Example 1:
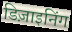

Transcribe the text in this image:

डिज़ाइनिंग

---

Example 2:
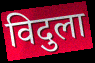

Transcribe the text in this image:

विदुला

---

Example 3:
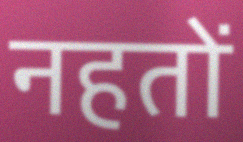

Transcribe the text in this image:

नहतों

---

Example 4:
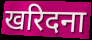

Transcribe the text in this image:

खरिदना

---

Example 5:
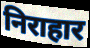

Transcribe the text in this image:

निराहार